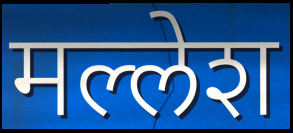
मल्लेश